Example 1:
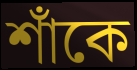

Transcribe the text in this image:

শাঁকে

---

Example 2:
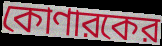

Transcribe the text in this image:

কোণারকের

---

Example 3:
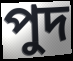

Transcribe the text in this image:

পুদ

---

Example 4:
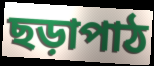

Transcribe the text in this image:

ছড়াপাঠ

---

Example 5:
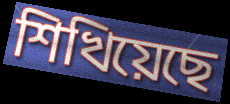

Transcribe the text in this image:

শিখিয়েছে